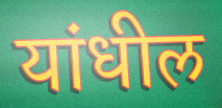
यांधील